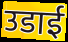
उडाई